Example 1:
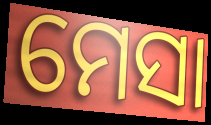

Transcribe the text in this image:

ମେସା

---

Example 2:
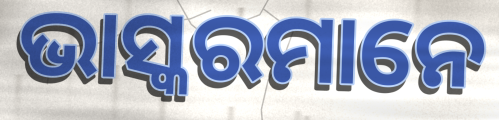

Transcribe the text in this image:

ଭାସ୍କରମାନେ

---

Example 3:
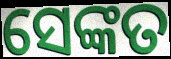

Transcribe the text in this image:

ସେଙ୍କତ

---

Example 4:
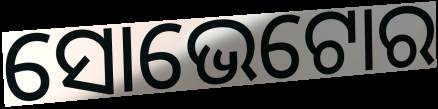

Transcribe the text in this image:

ସୋଭେଟୋର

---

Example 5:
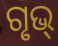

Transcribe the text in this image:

ଗୃଭ୍